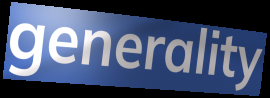
generality